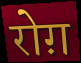
रोग़